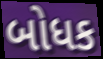
બોધક